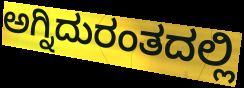
ಅಗ್ನಿದುರಂತದಲ್ಲಿ